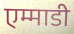
एम्माडी